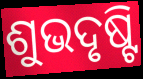
ଶୁଭଦୃଷ୍ଟି